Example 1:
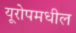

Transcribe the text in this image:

यूरोपमधील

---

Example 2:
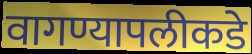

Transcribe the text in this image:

वागण्यापलीकडे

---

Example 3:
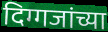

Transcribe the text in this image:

दिग्गजांच्या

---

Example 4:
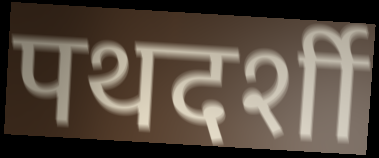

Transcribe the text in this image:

पथदर्शी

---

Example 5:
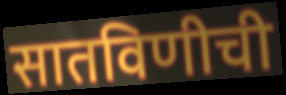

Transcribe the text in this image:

सातविणीची